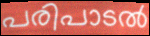
പരിപാടൽ